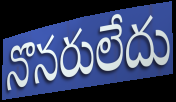
నొనరులేదు